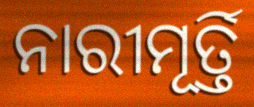
ନାରୀମୂର୍ତ୍ତି